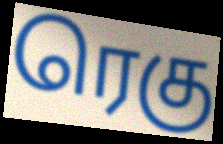
ரெகு